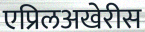
एप्रिलअखेरीस